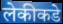
लेकीकडे